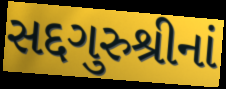
સદ્દગુરુશ્રીનાં